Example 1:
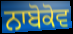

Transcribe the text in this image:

ਨਾਬੋਕੋਵ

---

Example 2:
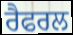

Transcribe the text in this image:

ਰੈਫਰਲ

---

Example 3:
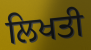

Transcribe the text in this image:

ਲਿਖਤੀ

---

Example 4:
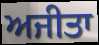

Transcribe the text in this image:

ਅਜੀਤਾ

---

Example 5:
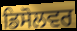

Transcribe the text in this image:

ਡਿਸੋਲਵਰ